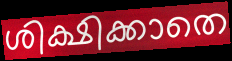
ശിക്ഷിക്കാതെ